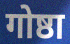
गोष्ठा